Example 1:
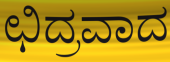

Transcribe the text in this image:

ಛಿದ್ರವಾದ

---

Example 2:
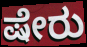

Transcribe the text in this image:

ಷೇರು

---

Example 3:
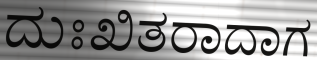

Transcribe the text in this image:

ದುಃಖಿತರಾದಾಗ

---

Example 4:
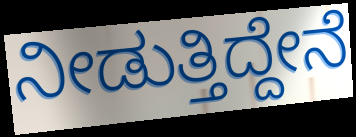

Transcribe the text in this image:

ನೀಡುತ್ತಿದ್ದೇನೆ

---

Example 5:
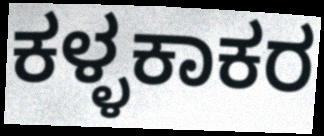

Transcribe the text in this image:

ಕಳ್ಳಕಾಕರ